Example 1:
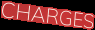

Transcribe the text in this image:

CHARGES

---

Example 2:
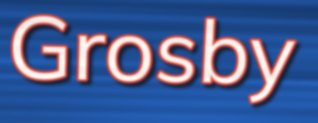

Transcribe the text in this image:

Grosby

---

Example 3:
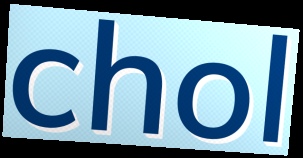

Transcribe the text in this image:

chol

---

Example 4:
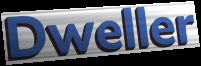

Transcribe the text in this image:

Dweller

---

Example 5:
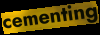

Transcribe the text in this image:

cementing